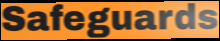
Safeguards